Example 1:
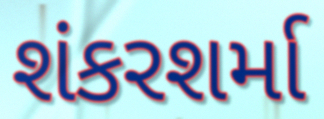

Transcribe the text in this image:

શંકરશર્મા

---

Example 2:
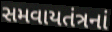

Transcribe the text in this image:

સમવાયતંત્રનાં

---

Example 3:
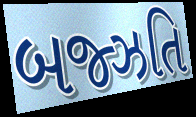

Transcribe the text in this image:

બજ્ઝતિ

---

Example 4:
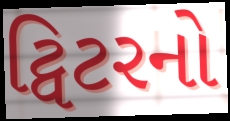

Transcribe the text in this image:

ટ્વિટરનો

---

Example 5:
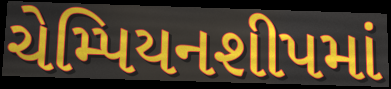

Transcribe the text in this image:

ચેમ્પિયનશીપમાં